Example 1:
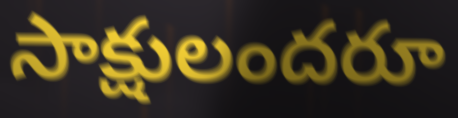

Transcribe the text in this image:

సాక్షులందరూ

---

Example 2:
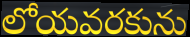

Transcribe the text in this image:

లోయవరకును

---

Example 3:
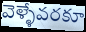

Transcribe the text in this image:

వెళ్ళేవరకూ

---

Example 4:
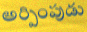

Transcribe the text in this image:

అర్పింపుడు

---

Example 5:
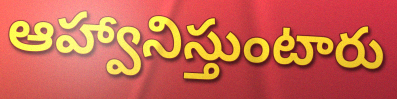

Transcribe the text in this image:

ఆహ్వానిస్తుంటారు